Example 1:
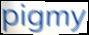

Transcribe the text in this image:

pigmy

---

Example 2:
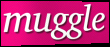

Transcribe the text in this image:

muggle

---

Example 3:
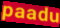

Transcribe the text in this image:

paadu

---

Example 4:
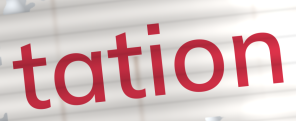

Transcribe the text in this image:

tation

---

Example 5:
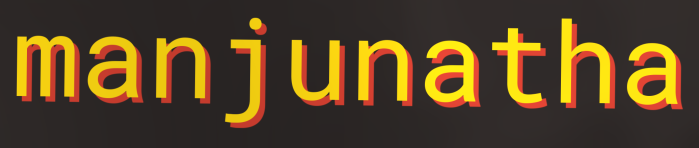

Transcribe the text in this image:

manjunatha